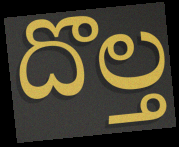
దొల్త